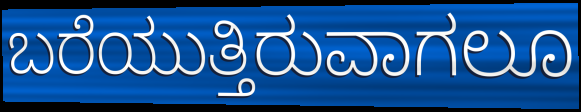
ಬರೆಯುತ್ತಿರುವಾಗಲೂ